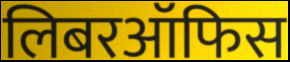
लिबरऑफिस